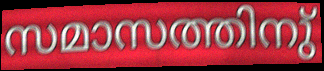
സമാസത്തിനു്